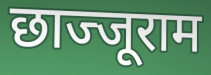
छाज्जूराम